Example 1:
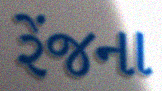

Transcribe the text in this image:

રેંજના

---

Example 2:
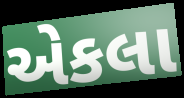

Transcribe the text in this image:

એકલા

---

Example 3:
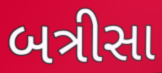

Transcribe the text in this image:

બત્રીસા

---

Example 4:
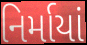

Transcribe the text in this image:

નિર્માયાં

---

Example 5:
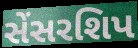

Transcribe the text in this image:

સેંસરશિપ